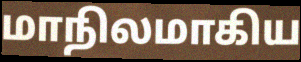
மாநிலமாகிய